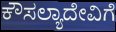
ಕೌಸಲ್ಯಾದೇವಿಗೆ